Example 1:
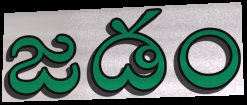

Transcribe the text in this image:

జడం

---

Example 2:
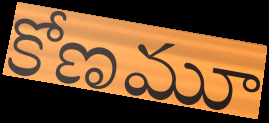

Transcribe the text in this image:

కోణమూ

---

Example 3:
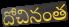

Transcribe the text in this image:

దోచినంత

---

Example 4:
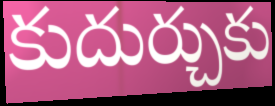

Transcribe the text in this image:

కుదుర్చుకు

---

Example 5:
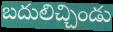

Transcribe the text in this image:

బదులిచ్చిండు